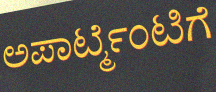
ಅಪಾರ್ಟ್ಮೆಂಟಿಗೆ